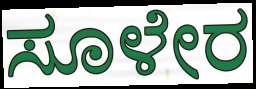
ಸೂಳೇರ